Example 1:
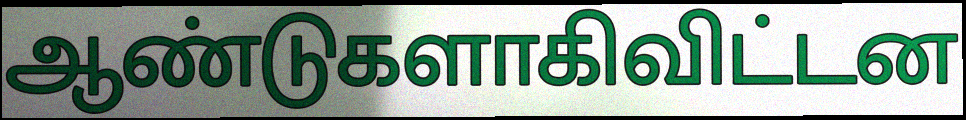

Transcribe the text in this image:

ஆண்டுகளாகிவிட்டன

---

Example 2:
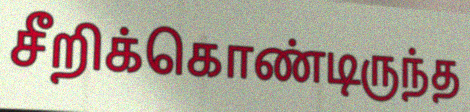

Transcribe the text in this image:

சீறிக்கொண்டிருந்த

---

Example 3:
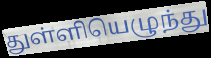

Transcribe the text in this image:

துள்ளியெழுந்து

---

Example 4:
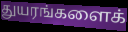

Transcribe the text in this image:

துயரங்களைக்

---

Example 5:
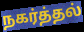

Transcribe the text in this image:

நகர்த்தல்